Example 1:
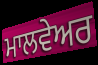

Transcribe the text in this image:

ਮਾਲਵੇਅਰ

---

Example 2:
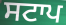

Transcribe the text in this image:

ਸਟਾਪ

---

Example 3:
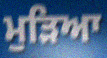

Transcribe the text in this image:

ਮੁੜਿਆ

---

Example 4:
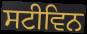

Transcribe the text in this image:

ਸਟੀਵਿਨ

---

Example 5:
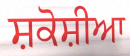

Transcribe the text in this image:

ਸ਼ਕੋਸ਼ੀਆ